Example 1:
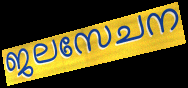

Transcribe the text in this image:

ജലസേചന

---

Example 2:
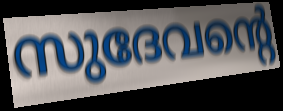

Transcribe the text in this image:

സുദേവന്റെ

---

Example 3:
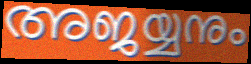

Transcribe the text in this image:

അജയ്യനും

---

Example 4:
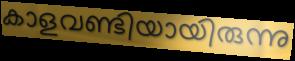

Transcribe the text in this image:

കാളവണ്ടിയായിരുന്നു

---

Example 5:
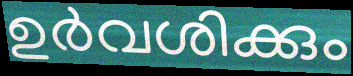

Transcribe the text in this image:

ഉർവശിക്കും